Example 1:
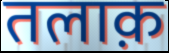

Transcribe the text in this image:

तलाक़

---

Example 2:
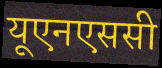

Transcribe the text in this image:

यूएनएससी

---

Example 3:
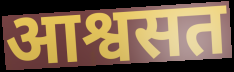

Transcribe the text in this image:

आश्वसत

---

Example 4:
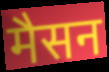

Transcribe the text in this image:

मैसन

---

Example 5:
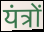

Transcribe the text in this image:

यंत्रों